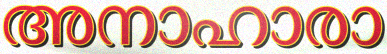
അനാഹാരാ